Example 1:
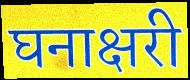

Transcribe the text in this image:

घनाक्षरी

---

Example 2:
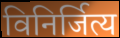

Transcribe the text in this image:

विनिर्जित्य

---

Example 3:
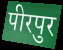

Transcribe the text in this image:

पीरपुर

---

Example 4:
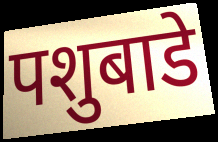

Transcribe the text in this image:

पशुबाडे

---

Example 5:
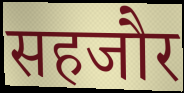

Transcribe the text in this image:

सहजौर